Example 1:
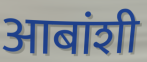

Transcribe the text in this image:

आबांशी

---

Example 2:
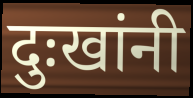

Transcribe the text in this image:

दुःखांनी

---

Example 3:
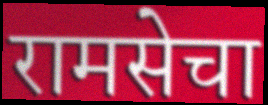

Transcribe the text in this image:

रामसेचा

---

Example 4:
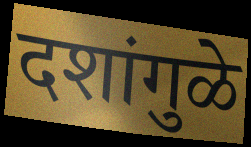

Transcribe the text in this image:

दशांगुळे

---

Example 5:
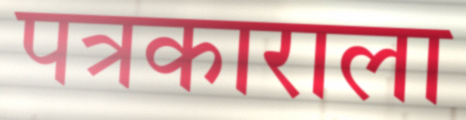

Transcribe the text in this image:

पत्रकाराला